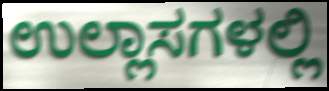
ಉಲ್ಲಾಸಗಳಲ್ಲಿ